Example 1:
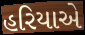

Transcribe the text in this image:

હરિયાએ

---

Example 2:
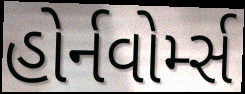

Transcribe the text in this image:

હોર્નવોર્મ્સ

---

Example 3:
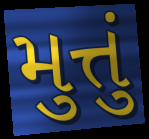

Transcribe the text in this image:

મુત્તું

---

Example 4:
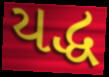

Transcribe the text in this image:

યદ્ધ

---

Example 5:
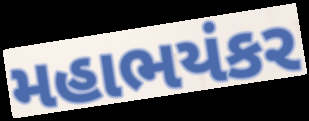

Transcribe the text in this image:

મહાભયંકર